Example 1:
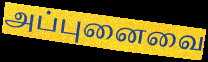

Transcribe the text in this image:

அப்புனைவை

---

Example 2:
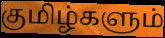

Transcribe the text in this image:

குமிழ்களும்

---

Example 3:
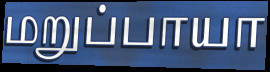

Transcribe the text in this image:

மறுப்பாயா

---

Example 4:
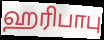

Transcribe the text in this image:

ஹரிபாபு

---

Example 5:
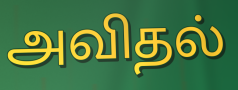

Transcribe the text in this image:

அவிதல்